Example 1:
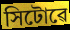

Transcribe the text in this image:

সিটোৱে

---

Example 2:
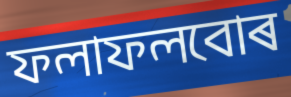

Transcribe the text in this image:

ফলাফলবোৰ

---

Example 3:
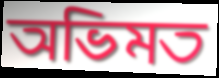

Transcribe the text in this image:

অভিমত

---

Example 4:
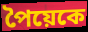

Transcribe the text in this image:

পৈয়েকে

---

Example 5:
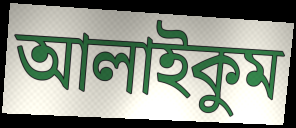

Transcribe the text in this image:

আলাইকুম